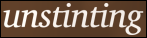
unstinting